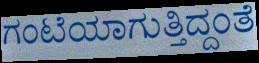
ಗಂಟೆಯಾಗುತ್ತಿದ್ದಂತೆ